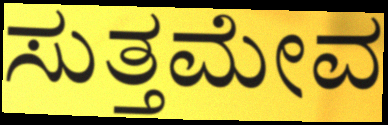
ಸುತ್ತಮೇವ